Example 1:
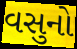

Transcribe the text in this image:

વસુનો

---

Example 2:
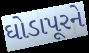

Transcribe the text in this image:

ઘોડાપૂરને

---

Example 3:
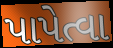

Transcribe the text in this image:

પાપેત્વા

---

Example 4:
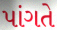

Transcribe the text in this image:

પાંગતે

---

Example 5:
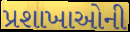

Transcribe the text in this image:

પ્રશાખાઓની